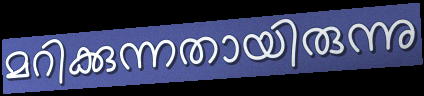
മറിക്കുന്നതായിരുന്നു